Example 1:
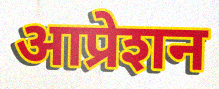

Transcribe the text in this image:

आप्रेशन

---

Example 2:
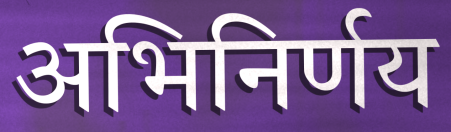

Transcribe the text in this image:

अभिनिर्णय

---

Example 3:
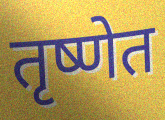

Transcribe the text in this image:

तृष्णेत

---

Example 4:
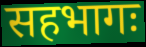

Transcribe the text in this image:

सहभागः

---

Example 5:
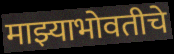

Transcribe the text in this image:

माझ्याभोवतीचे